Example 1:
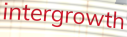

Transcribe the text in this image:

intergrowth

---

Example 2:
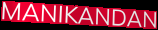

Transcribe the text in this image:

MANIKANDAN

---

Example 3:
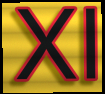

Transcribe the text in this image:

Xl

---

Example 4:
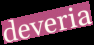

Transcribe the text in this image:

deveria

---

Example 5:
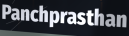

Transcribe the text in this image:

Panchprasthan